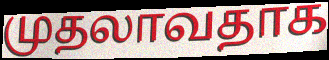
முதலாவதாக